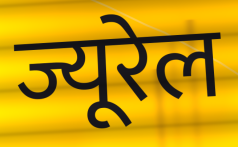
ज्यूरेल